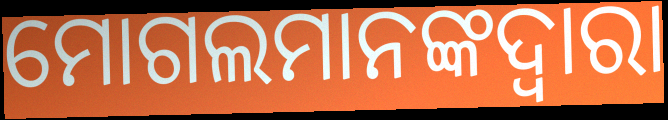
ମୋଗଲମାନଙ୍କଦ୍ୱାରା